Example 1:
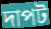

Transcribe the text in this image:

দাপট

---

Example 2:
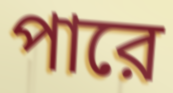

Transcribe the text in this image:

পারে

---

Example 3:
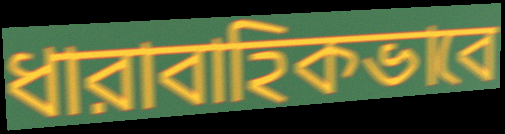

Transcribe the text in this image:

ধারাবাহিকভাবে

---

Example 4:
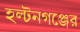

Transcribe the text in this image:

হল্টনগঞ্জের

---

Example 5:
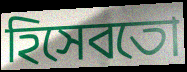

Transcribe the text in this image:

হিসেবতো